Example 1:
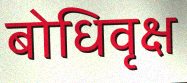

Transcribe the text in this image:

बोधिवृक्ष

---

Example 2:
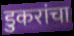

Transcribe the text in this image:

डुकरांचा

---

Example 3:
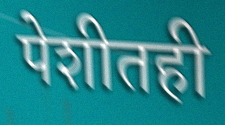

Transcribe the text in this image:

पेशीतही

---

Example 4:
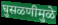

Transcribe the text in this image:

घुसळणीमुळे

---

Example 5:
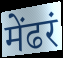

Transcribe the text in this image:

मेंढरं